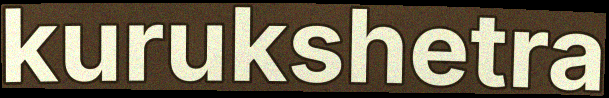
kurukshetra